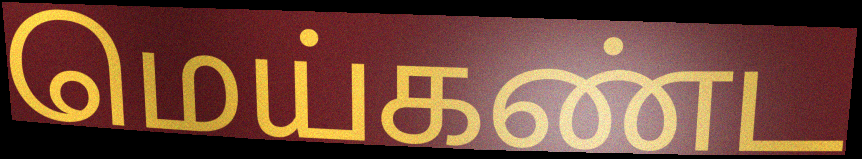
மெய்கண்ட